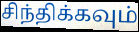
சிந்திக்கவும்